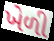
ખેળી